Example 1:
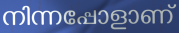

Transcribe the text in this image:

നിന്നപ്പോളാണ്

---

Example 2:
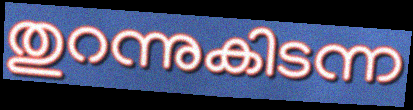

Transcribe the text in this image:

തുറന്നുകിടന്ന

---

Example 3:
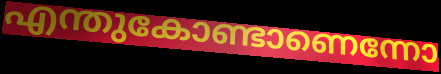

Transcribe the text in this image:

എന്തുകോണ്ടാണെന്നോ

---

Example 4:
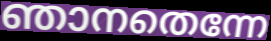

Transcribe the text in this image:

ഞാനതെന്നേ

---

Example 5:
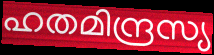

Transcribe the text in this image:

ഹതമിന്ദ്രസ്യ